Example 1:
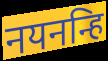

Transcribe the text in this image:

नयनन्हि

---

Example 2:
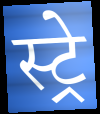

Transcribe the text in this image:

स्ट्रे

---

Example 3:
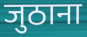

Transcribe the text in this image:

जुठाना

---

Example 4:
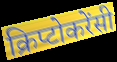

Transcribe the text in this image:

क्रिप्टोकरेंसी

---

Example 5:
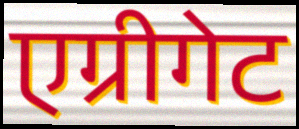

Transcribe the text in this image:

एग्रीगेट